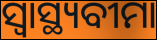
ସ୍ଵାସ୍ଥ୍ୟବୀମା